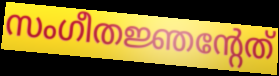
സംഗീതജ്ഞന്റേത്